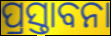
ପ୍ରସ୍ତାବନା